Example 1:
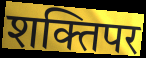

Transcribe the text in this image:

शक्तिपर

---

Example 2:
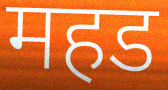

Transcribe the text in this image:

महड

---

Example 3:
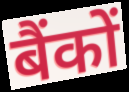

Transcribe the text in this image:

बैंकों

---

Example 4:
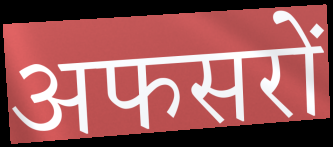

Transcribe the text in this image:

अफसरों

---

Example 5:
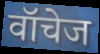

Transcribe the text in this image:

वॉचेज